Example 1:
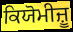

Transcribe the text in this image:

ਕਿਯੋਮੀਜ਼ੂ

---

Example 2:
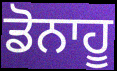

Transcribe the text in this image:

ਡੋਨਾਹੂ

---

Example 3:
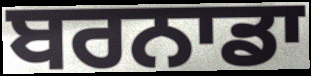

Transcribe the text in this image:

ਬਰਨਾਡਾ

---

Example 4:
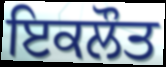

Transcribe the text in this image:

ਇਕਲੌਤ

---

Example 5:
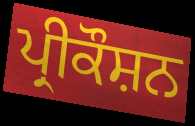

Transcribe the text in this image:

ਪ੍ਰੀਕੌਸ਼ਨ